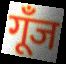
गूँज